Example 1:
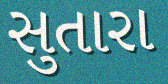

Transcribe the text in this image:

સુતારા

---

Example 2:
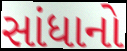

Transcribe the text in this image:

સાંધાનો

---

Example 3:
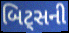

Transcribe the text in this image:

બિટ્સની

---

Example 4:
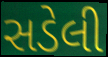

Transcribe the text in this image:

સડેલી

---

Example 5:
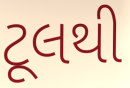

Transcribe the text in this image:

ટૂલથી